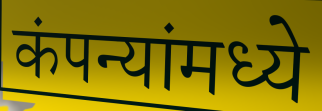
कंपन्यांमध्ये